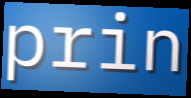
prin